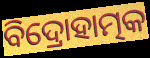
ବିଦ୍ରୋହାତ୍ମକ